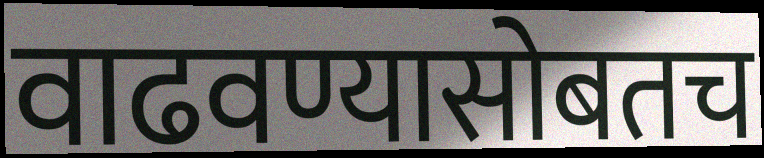
वाढवण्यासोबतच